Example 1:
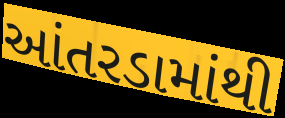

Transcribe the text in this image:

આંતરડામાંથી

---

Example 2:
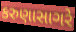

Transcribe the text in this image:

કરુણાસાગરે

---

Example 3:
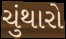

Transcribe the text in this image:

ચુંથારો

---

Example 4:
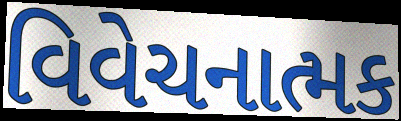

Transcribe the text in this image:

વિવેચનાત્મક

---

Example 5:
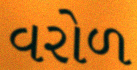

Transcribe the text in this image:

વરોળ